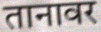
तानावर